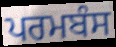
ਪਰਮਬੰਸ